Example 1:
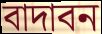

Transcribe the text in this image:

বাদাবন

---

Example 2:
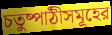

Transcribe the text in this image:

চতুষ্পাঠীসমূহের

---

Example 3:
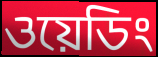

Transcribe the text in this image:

ওয়েডিং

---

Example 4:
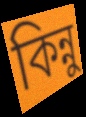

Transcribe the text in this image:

কিন্নু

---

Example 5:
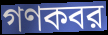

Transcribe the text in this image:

গণকবর